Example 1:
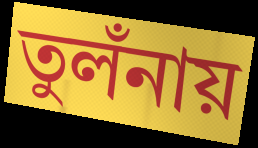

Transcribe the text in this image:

তুলঁনায়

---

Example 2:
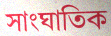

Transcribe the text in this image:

সাংঘাতিক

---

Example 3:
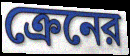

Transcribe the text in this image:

ক্রেনের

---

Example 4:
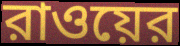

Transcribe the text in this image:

রাওয়ের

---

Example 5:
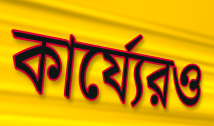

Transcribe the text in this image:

কার্য্যেরও